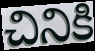
చినికి